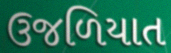
ઉજળિયાત